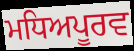
ਮਧਿਅਪੂਰਵ